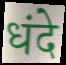
धंदे